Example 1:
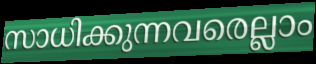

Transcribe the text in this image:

സാധിക്കുന്നവരെല്ലാം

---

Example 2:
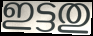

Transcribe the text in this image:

ഇട്ടതു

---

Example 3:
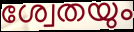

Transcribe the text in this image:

ശ്വേതയും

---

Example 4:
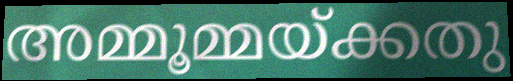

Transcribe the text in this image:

അമ്മൂമ്മയ്ക്കതു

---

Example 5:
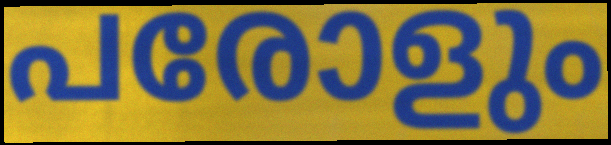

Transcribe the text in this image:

പരോളും